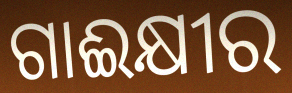
ଗାଈକ୍ଷୀର